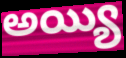
అయ్యి